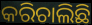
କରିଚାଲିଛି